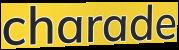
charade